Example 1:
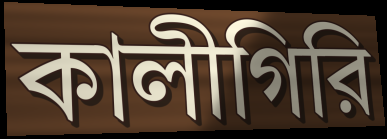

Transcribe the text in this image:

কালীগিরি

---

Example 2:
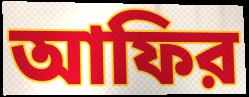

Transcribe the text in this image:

আফির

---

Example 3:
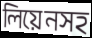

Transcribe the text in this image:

লিয়েনসহ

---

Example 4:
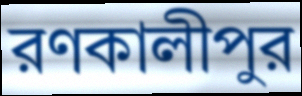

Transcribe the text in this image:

রণকালীপুর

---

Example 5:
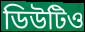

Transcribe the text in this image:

ডিউটিও